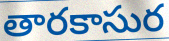
తారకాసుర